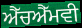
ਐੱਚਐੱਮਵੀ